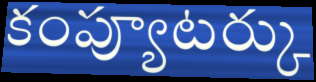
కంప్యూటర్కు